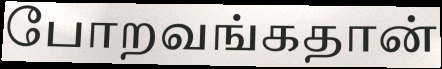
போறவங்கதான்